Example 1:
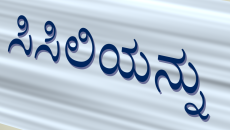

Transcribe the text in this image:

ಸಿಸಿಲಿಯನ್ನು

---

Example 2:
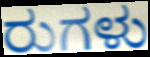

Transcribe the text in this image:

ರುಗಳು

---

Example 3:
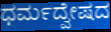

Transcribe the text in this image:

ಧರ್ಮದ್ವೇಷದ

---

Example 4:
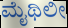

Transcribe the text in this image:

ಮೈಥಿಲೀ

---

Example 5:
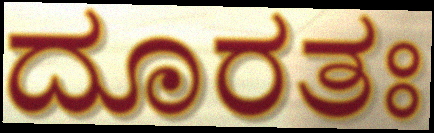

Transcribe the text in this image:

ದೂರತಃ